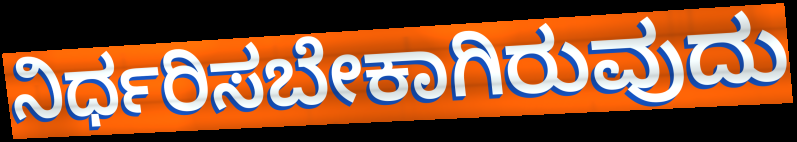
ನಿರ್ಧರಿಸಬೇಕಾಗಿರುವುದು